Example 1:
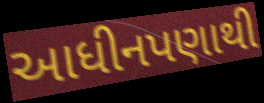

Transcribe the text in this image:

આધીનપણાથી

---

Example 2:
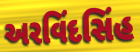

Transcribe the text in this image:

અરવિંદસિંહ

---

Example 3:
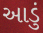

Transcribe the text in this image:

આડું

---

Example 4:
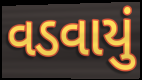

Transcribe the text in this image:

વડવાયું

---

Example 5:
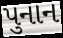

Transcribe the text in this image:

પુનાન